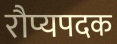
रौप्यपदक